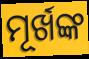
ମୂର୍ଖଙ୍କ